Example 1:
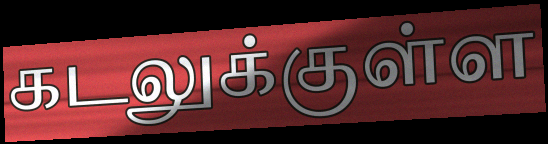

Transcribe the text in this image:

கடலுக்குள்ள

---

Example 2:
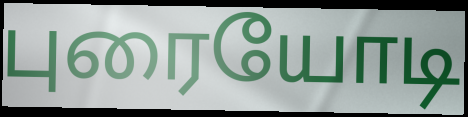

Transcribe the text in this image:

புரையோடி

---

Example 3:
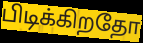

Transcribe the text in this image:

பிடிக்கிறதோ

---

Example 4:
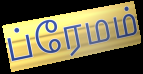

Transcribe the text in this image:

ப்ரேமம்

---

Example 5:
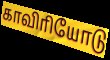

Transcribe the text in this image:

காவிரியோடு